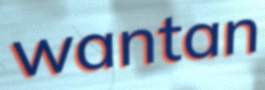
wantan